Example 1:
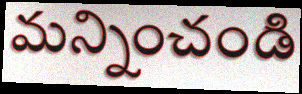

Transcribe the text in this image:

మన్నించండి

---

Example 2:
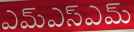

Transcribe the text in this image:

ఎమ్ఎస్ఎమ్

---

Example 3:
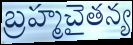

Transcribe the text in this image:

బ్రహ్మచైతన్య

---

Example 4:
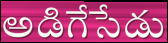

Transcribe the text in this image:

అడిగేసేడు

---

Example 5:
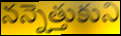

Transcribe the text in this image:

నన్నెత్తుకుని